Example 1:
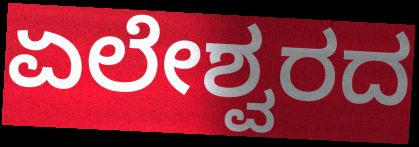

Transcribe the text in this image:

ಏಲೇಶ್ವರದ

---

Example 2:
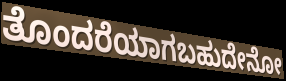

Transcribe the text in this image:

ತೊಂದರೆಯಾಗಬಹುದೇನೋ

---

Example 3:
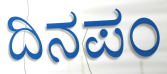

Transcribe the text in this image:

ದಿನಪಂ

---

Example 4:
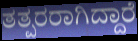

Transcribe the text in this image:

ತತ್ಪರರಾಗಿದ್ದಾರೆ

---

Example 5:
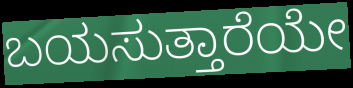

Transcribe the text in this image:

ಬಯಸುತ್ತಾರೆಯೇ